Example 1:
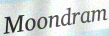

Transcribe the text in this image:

Moondram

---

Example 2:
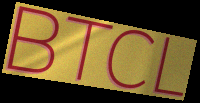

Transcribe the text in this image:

BTCL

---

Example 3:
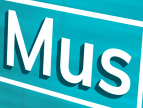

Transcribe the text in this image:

Mus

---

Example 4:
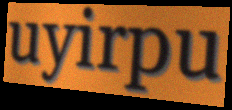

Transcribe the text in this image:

uyirpu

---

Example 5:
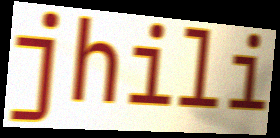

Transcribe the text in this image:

jhili